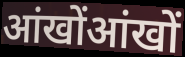
आंखोंआंखों